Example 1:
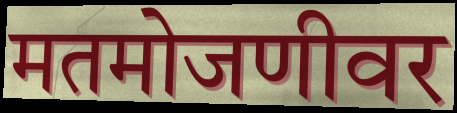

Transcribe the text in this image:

मतमोजणीवर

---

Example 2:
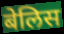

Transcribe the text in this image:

बेलिस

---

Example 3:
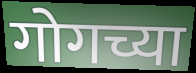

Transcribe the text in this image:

गोगच्या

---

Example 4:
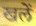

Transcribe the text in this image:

खलें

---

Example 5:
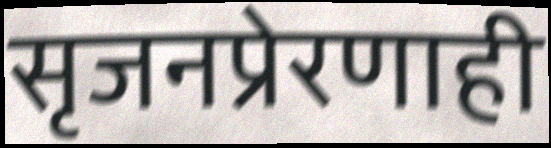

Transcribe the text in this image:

सृजनप्रेरणाही